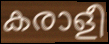
കരാളീ